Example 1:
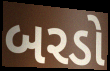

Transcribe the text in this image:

બરડો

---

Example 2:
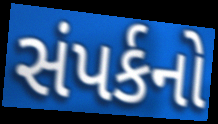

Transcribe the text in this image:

સંપર્કનો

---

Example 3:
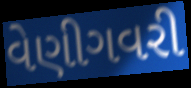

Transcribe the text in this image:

વેણીગવરી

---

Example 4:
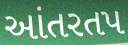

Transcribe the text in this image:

આંતરતપ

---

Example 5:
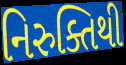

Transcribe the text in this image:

નિરુક્તિથી